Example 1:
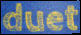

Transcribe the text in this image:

duet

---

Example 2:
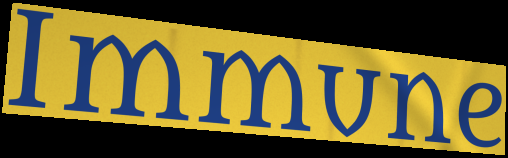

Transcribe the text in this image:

Immune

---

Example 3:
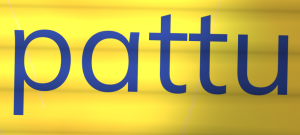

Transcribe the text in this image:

pattu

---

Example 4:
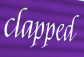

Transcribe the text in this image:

clapped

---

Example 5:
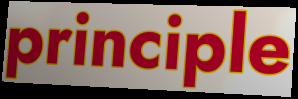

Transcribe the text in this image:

principle